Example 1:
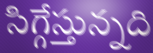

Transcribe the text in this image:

సిగ్గేస్తున్నది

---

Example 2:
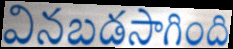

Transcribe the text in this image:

వినబడసాగింది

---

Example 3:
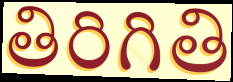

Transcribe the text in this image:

తిరిగితి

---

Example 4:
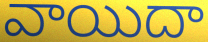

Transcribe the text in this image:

వాయిదా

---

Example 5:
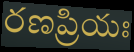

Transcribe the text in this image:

రణప్రియః